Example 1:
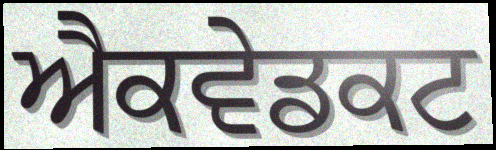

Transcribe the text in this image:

ਐਕਵੇਡਕਟ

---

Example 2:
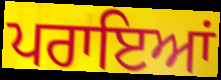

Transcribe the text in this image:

ਪਰਾਇਆਂ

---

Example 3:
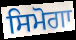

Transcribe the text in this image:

ਸਿਮੋਗਾ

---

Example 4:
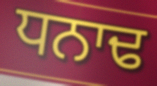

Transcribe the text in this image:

ਧਨਾਢ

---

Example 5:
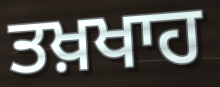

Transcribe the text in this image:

ਤਖ਼ਖਾਹ